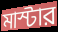
মাস্টার